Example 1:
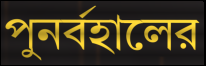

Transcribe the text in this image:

পুনর্বহালের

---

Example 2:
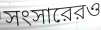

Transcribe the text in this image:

সংসারেরও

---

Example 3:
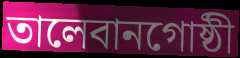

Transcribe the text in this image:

তালেবানগোষ্ঠী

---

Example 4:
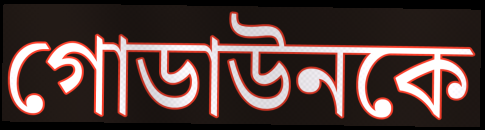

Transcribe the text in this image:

গোডাউনকে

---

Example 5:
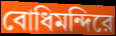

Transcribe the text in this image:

বোধিমন্দিরে